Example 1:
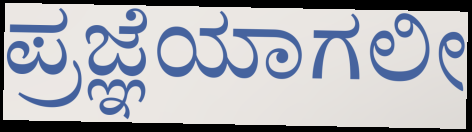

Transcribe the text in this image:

ಪ್ರಜ್ಞೆಯಾಗಲೀ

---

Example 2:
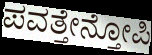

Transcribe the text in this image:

ಪವತ್ತೇನ್ತೋಪಿ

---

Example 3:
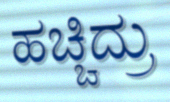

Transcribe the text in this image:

ಹಚ್ಚಿದ್ರು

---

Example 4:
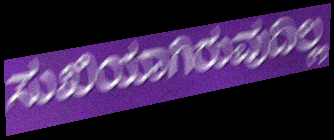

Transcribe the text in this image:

ಸುಖಿಯಾಗಿರುವುದಿಲ್ಲ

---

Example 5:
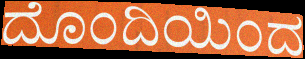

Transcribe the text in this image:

ದೊಂದಿಯಿಂದ